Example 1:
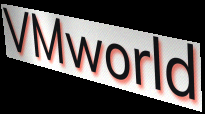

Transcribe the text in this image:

VMworld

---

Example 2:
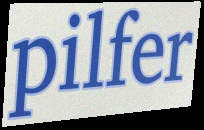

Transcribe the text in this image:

pilfer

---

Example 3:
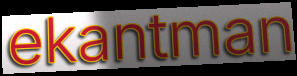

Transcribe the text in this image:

ekantman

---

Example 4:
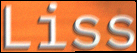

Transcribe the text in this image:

Liss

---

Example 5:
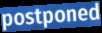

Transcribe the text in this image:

postponed